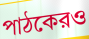
পাঠকেরও